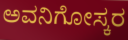
ಅವನಿಗೋಸ್ಕರ